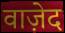
वाज़ेद